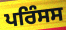
ਪਰਿੰਸਸ